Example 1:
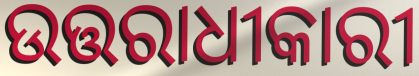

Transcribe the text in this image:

ଉତ୍ତରାଧୀକାରୀ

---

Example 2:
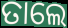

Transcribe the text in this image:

ତାଲେ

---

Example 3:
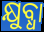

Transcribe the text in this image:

କ୍ଷୁବ୍ଧା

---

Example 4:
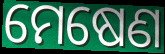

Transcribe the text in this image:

ମେଷେଣ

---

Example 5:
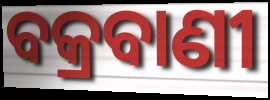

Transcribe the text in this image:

ବକ୍ରବାଣୀ